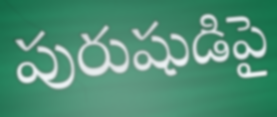
పురుషుడిపై